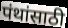
पंथांसाठी